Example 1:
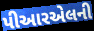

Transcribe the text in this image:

પીઆરએલની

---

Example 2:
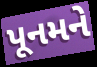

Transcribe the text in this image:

પૂનમને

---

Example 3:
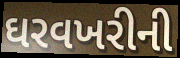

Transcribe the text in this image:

ઘરવખરીની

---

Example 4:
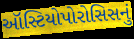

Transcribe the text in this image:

ઑસ્ટિયોપોરોસિસનું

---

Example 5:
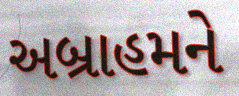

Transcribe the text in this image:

અબ્રાહમને